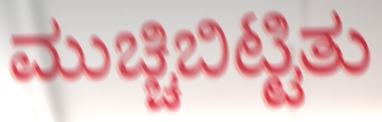
ಮುಚ್ಚಿಬಿಟ್ಟಿತು